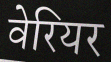
वेरियर